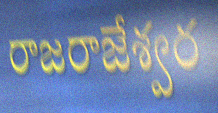
రాజరాజేశ్వర